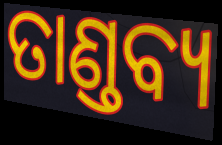
ତାଣ୍ଡବ୍ୟ